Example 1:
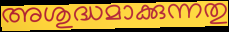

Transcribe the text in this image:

അശുദ്ധമാക്കുന്നതു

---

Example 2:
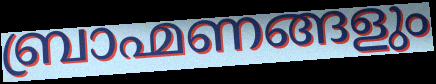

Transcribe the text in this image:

ബ്രാഹ്മണങ്ങളും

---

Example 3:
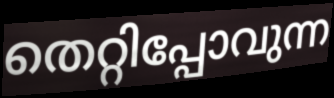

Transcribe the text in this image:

തെറ്റിപ്പോവുന്ന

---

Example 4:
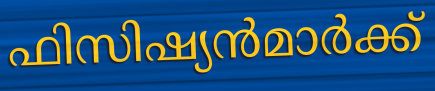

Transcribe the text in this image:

ഫിസിഷ്യൻമാർക്ക്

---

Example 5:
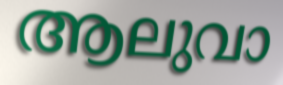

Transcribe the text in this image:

ആലുവാ